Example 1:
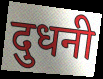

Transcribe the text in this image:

दुधनी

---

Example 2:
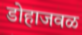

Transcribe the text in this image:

डोहाजवळ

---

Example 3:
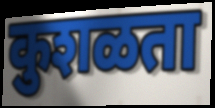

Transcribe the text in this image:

कुशळता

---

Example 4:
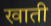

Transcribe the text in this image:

खाती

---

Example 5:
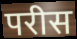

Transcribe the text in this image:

परीस